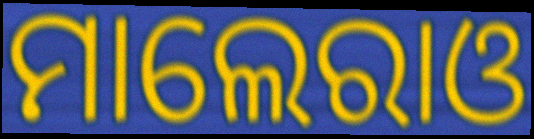
ମାଲେରାଓ